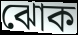
ঝোক